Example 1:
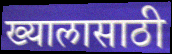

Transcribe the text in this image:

ख्यालासाठी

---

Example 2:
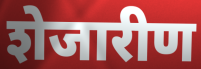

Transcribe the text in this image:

शेजारीण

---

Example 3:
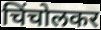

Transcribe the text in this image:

चिंचोलकर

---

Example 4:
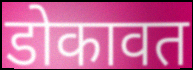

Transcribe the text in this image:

डोकावत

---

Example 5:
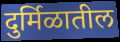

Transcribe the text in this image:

दुर्मिळातील